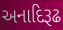
અનાદિરૂઢ